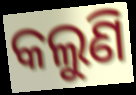
କଲୁଣି